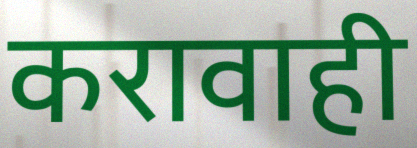
करावाही